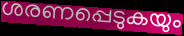
ശരണപ്പെടുകയും